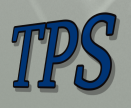
TPS